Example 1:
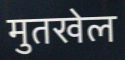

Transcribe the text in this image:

मुतखेल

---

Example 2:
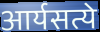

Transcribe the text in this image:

आर्यसत्ये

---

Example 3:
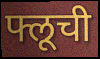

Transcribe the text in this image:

फ्लूची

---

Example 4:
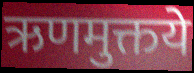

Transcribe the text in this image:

ऋणमुक्तये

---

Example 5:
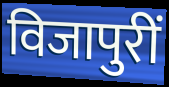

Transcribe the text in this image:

विजापुरीं